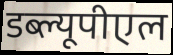
डब्ल्यूपीएल